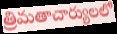
త్రిమతాచార్యులలో